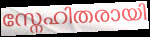
സ്നേഹിതരായി